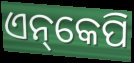
ଏନ୍‌କେପି